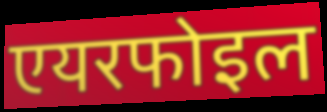
एयरफोइल